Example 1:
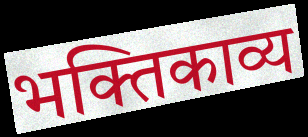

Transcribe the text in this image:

भक्तिकाव्य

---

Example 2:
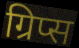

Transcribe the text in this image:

ग्रिप्स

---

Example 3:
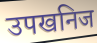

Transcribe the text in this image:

उपखनिज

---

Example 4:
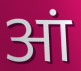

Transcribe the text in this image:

आं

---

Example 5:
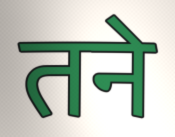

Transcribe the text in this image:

तने